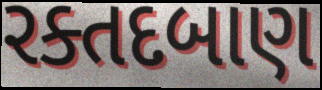
રક્તદબાણ